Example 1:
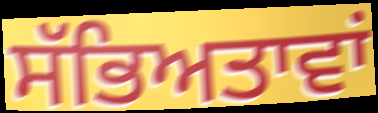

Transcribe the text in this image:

ਸੱਭਿਅਤਾਵਾਂ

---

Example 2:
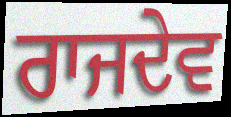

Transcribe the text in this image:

ਰਾਜਦੇਵ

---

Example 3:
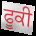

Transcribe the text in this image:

ਫੂਕੀ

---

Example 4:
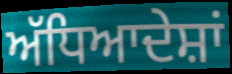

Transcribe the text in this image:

ਅੱਧਿਆਦੇਸ਼ਾਂ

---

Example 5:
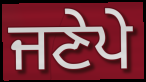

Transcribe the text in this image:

ਜਣੇਪੇ